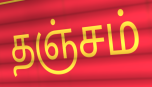
தஞ்சம்